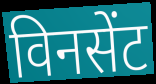
विनसेंट